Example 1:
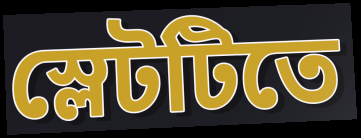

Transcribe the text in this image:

স্লেটটিতে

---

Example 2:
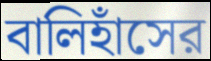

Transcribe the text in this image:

বালিহাঁসের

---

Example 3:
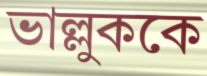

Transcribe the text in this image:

ভাল্লুককে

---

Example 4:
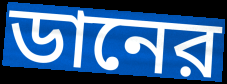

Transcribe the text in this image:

ডানের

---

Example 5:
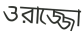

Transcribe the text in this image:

ওরাজ্জো